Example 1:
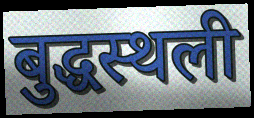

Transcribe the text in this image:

बुद्धस्थली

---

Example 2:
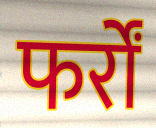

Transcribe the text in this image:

फर्रों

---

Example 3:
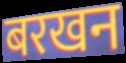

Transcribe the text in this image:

बरखन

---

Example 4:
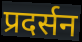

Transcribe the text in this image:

प्रदर्सन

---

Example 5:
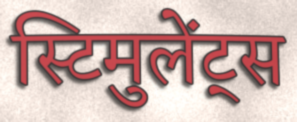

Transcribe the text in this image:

स्टिमुलेंट्स